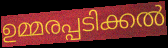
ഉമ്മരപ്പടിക്കൽ